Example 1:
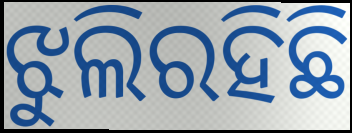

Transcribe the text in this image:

ଝୁଲିରହିଛି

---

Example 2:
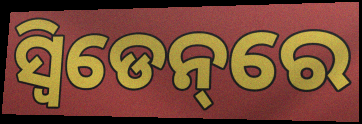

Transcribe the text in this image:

ସ୍ୱିଡେନ୍‌ରେ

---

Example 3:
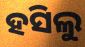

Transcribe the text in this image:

ହସିଲୁ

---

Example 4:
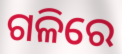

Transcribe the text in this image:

ଗଳିରେ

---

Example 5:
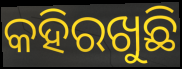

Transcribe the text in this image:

କହିରଖୁଛି